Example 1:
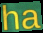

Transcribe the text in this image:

ha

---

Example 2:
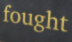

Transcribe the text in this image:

fought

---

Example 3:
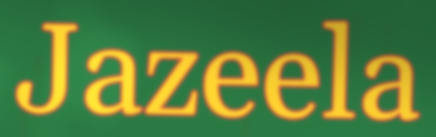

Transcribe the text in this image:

Jazeela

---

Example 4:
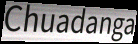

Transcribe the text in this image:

Chuadanga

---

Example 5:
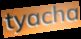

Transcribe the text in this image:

tyacha